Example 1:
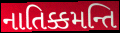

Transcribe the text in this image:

નાતિક્કમન્તિ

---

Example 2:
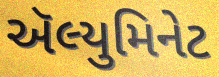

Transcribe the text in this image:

ઍલ્યુમિનેટ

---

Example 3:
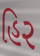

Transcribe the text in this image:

હિર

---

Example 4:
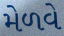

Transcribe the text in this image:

મેળવે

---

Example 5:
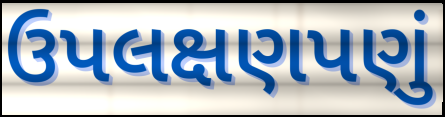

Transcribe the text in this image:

ઉપલક્ષણપણું